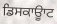
ਡਿਸਕਾਊਾਟ